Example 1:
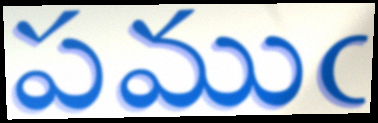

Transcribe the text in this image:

పముఁ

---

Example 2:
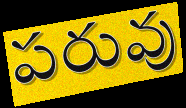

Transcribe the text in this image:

పరువు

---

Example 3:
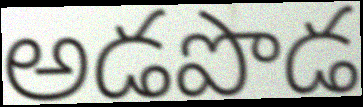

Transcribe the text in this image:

అడపొడ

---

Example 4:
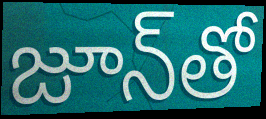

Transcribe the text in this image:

జూన్‌తో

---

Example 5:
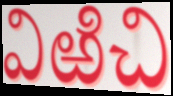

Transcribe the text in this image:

విఱిచి